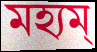
মহ্যম্